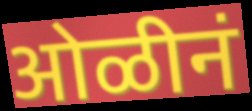
ओळीनं